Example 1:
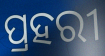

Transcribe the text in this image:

ପ୍ରହରୀ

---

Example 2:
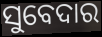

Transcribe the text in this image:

ସୁବେଦାର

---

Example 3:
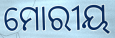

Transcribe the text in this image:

ମୋରୀୟ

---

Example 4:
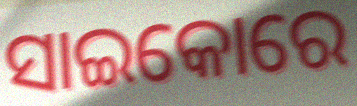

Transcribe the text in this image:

ସାଇକୋରେ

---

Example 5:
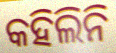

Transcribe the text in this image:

କହିଲିନି